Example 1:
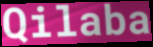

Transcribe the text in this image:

Qilaba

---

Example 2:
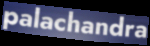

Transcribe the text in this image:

palachandra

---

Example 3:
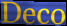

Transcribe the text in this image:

Deco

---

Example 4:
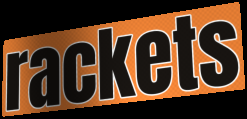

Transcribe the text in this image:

rackets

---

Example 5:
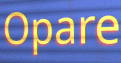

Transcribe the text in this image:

Opare